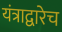
यंत्राद्वारेच